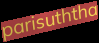
parisuththa